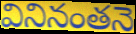
వినినంతనె